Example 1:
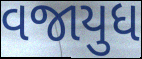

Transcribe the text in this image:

વજાયુધ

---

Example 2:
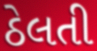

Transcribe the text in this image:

ઠેલતી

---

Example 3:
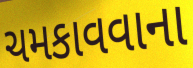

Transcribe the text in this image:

ચમકાવવાના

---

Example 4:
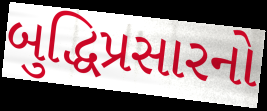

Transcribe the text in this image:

બુદ્ધિપ્રસારનો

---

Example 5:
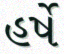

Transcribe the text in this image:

હર્ષે